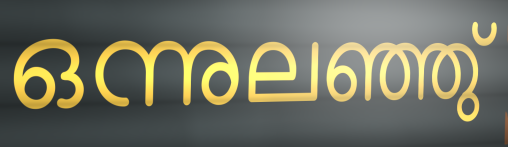
ഒന്നുലഞ്ഞു്